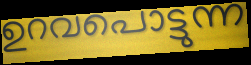
ഉറവപൊട്ടുന്ന